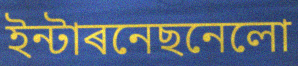
ইন্টাৰনেছনেলো